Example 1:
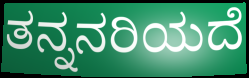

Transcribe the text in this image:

ತನ್ನನರಿಯದೆ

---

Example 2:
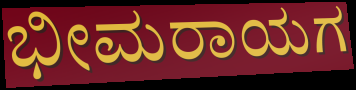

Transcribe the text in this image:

ಭೀಮರಾಯಗ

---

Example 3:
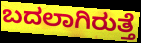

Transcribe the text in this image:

ಬದಲಾಗಿರುತ್ತೆ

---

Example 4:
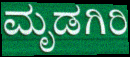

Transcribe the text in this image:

ಮೃಡಗಿರಿ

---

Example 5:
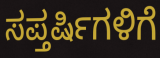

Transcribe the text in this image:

ಸಪ್ತರ್ಷಿಗಳಿಗೆ